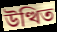
উত্থিত